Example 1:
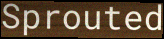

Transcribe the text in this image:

Sprouted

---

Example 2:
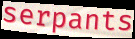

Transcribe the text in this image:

serpants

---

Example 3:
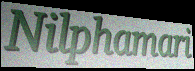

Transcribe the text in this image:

Nilphamari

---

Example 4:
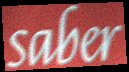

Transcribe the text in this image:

saber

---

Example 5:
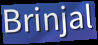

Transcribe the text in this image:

Brinjal